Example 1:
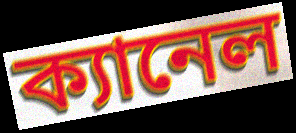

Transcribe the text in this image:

ক্যানেল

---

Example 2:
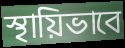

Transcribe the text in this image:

স্থায়িভাবে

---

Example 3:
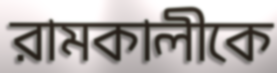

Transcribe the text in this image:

রামকালীকে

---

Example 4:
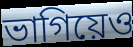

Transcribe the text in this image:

ভাগিয়েও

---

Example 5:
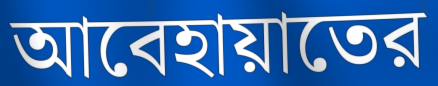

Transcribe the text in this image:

আবেহায়াতের